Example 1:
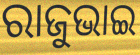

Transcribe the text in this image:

ରାଜୁଭାଇ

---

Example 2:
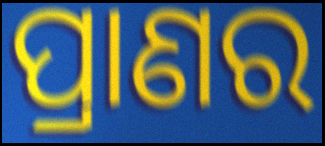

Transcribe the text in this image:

ପ୍ରାଣର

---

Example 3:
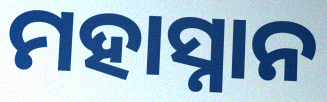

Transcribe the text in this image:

ମହାସ୍ନାନ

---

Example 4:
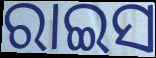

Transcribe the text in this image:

ରାଇସ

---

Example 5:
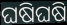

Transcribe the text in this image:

ଘଷିଘଷି